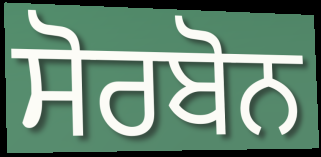
ਸੋਰਬੋਨ